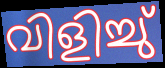
വിളിച്ചു്